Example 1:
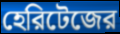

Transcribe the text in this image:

হেরিটেজের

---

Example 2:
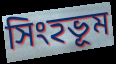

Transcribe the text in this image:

সিংহভূম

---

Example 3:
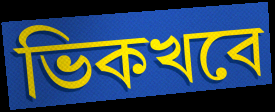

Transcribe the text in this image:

ভিকখবে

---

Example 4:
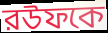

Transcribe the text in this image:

রউফকে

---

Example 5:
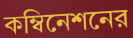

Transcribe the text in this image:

কম্বিনেশনের